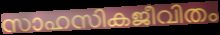
സാഹസികജീവിതം